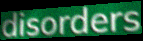
disorders